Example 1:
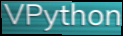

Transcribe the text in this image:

VPython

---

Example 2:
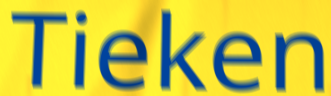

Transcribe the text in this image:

Tieken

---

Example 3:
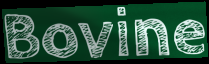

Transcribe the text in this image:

Bovine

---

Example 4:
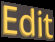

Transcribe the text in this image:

Edit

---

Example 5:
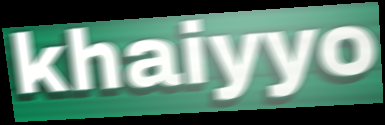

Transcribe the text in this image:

khaiyyo